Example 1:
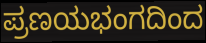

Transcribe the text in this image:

ಪ್ರಣಯಭಂಗದಿಂದ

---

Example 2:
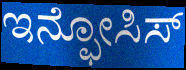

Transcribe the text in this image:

ಇನ್ಫೋಸಿಸ್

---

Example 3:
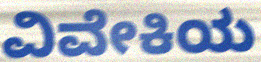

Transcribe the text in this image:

ವಿವೇಕಿಯ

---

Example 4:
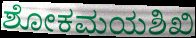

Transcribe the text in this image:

ಶೋಕಮಯಶಿಖಿ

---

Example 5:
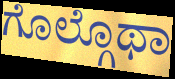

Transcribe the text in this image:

ಗೊಲ್ಗೊಥಾ